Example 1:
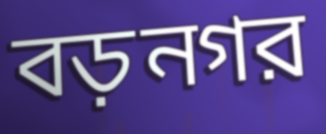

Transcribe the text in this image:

বড়নগর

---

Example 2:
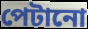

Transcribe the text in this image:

পেটানো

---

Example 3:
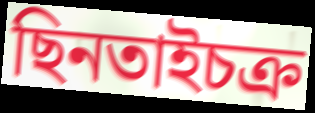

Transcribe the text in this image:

ছিনতাইচক্র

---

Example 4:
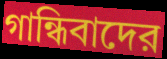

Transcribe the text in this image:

গান্ধিবাদের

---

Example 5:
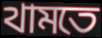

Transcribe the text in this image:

থামতে